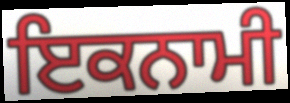
ਇਕਨਾਮੀ